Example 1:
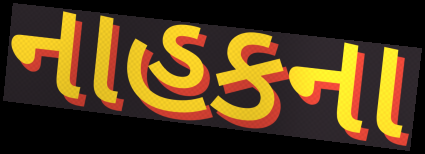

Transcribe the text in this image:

નાહકના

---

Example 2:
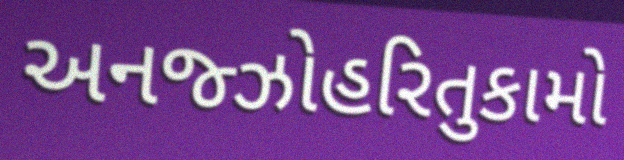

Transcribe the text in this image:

અનજ્ઝોહરિતુકામો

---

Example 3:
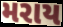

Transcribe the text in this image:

મરાય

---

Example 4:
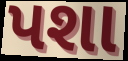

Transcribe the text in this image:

પશા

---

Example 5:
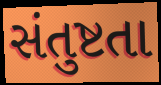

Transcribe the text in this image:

સંતુષ્ટતા